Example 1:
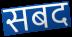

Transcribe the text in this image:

सबद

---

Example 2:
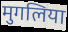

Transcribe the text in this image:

मुगलिया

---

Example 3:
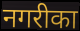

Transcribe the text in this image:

नगरीका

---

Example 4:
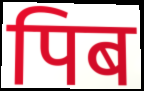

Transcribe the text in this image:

पिब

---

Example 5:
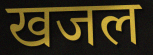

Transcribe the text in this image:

खजल